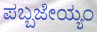
ಪಬ್ಬಜೇಯ್ಯಂ